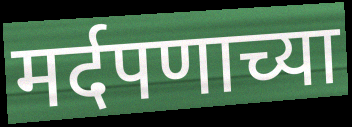
मर्दपणाच्या